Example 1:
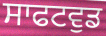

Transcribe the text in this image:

ਸਾਫਟਵੁਡ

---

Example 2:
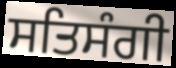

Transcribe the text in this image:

ਸਤਿਸੰਗੀ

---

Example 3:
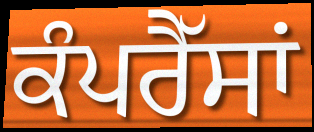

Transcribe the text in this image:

ਕੰਪਰੈੱਸਾਂ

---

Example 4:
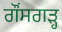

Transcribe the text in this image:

ਗੌਂਸਗੜ੍ਹ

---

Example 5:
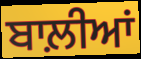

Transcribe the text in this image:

ਬਾਲ਼ੀਆਂ